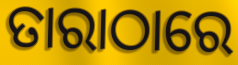
ତାରାଠାରେ